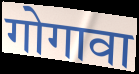
गोगावा